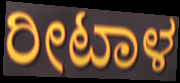
ರೀಟಾಳ